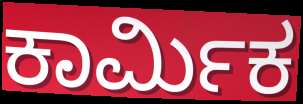
ಕಾರ್ಮಿಕ